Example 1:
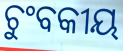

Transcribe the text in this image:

ଚୁଂବକୀୟ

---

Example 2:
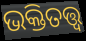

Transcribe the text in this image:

ଭକ୍ତିତତ୍ତ୍ୱ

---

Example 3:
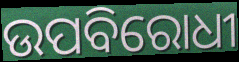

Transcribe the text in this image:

ଉପବିରୋଧୀ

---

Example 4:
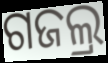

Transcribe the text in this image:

ଗଜଲ୍ର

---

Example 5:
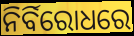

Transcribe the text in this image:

ନିର୍ବିରୋଧରେ